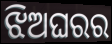
ଝିଅଘରର